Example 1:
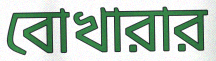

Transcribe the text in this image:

বোখারার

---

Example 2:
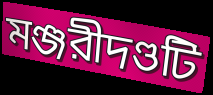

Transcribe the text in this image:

মঞ্জরীদণ্ডটি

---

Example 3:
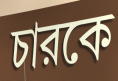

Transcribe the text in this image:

চারকে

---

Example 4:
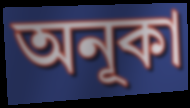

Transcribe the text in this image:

অনূকা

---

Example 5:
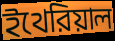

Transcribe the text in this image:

ইথেরিয়াল